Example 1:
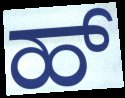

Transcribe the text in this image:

ಹ್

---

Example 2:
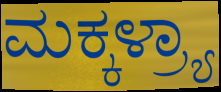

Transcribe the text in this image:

ಮಕ್ಕಳ್ರ್ಯಾ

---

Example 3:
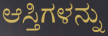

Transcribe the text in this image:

ಆಸ್ತಿಗಳನ್ನು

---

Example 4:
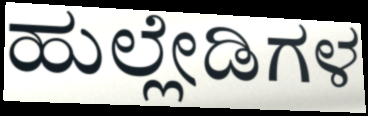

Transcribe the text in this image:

ಹುಲ್ಲೇಡಿಗಳ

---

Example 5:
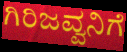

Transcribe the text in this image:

ಗಿರಿಜವ್ವನಿಗೆ